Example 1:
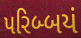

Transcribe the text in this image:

પરિબ્બયં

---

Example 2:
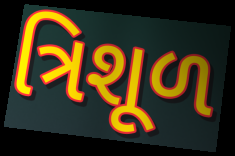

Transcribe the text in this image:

ત્રિશૂળ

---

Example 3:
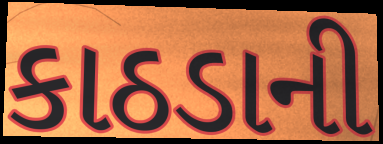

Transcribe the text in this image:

કાઠડાની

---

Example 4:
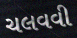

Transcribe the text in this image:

ચલવવી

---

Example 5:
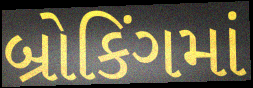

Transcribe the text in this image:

બ્રોકિંગમાં